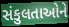
સંકુલતાઓને